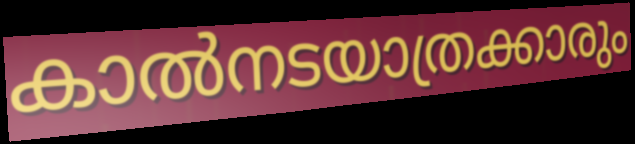
കാൽനടയാത്രക്കാരും